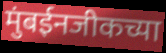
मुंबईनजीकच्या